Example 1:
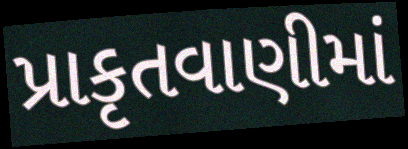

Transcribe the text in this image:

પ્રાકૃતવાણીમાં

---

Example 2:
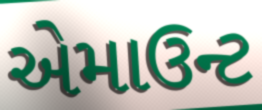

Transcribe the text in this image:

એમાઉન્ટ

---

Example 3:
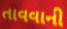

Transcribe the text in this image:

તાવવાની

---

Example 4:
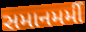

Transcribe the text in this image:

સમાનમર્મી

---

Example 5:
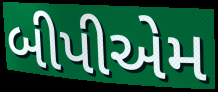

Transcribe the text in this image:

બીપીએમ